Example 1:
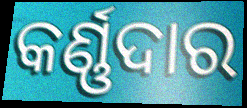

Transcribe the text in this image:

କର୍ଣ୍ଣଦାର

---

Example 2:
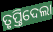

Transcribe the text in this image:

ତୃପ୍ତିଦେଲା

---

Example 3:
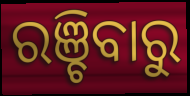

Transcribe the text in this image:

ରଞ୍ଚିବାରୁ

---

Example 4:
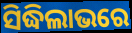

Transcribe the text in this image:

ସିଦ୍ଧିଲାଭରେ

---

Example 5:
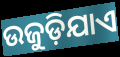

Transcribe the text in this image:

ଉଜୁଡ଼ିଯାଏ